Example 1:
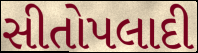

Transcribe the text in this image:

સીતોપલાદી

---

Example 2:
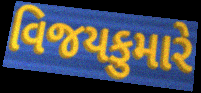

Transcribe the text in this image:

વિજયકુમારે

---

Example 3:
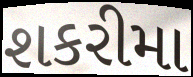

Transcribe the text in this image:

શકરીમા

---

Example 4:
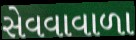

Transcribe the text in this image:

સેવવાવાળા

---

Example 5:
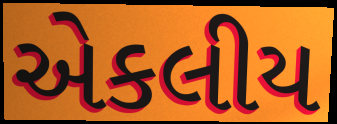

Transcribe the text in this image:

એકલીય